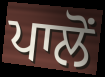
ਪਾਲੋਂ